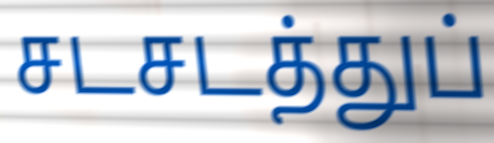
சடசடத்துப்